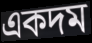
একদম